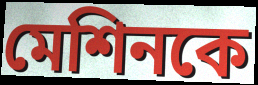
মেশিনকে